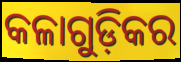
କଳାଗୁଡ଼ିକର